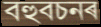
বহুবচনৰ